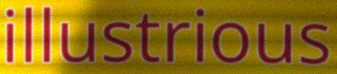
illustrious